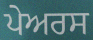
ਪੇਅਰਸ